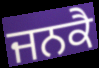
ਜਨਕੈ